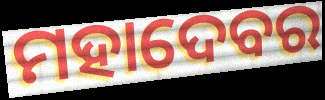
ମହାଦେବର